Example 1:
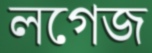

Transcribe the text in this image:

লগেজ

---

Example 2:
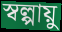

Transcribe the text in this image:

স্বল্পায়ু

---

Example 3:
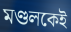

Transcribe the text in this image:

মণ্ডলকেই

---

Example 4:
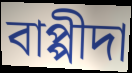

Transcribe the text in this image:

বাপ্পীদা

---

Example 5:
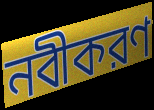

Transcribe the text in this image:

নবীকরণ